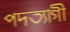
পদত্যাগী